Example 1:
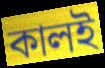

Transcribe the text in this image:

কালই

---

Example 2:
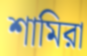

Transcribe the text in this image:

শামিরা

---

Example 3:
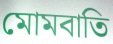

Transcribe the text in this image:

মোমবাতি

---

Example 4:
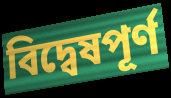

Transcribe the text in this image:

বিদ্বেষপূর্ণ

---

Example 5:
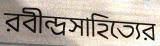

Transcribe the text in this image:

রবীন্দ্রসাহিত্যের